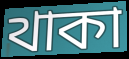
থাকা